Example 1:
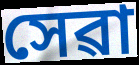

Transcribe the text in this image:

সেৱা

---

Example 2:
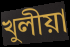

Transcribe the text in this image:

খুলীয়া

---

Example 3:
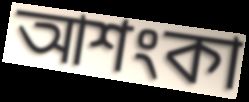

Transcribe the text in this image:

আশংকা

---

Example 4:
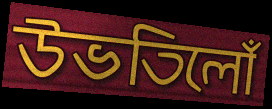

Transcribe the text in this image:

উভতিলোঁ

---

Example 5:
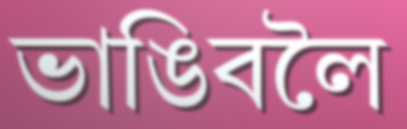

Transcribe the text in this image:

ভাঙিবলৈ